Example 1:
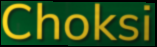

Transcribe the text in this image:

Choksi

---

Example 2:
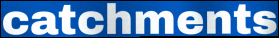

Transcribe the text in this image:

catchments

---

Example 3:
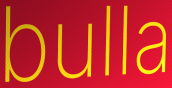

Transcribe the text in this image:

bulla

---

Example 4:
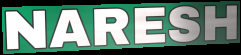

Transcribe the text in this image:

NARESH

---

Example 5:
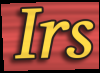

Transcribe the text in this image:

Irs